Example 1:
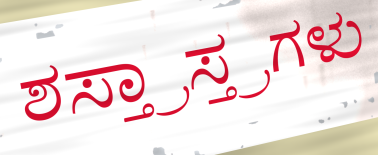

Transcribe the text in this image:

ಶಸ್ತ್ರಾಸ್ತ್ರಗಳು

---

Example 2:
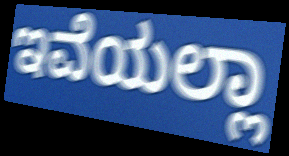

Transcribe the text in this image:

ಇವೆಯಲ್ಲಾ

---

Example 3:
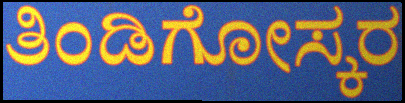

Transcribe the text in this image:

ತಿಂಡಿಗೋಸ್ಕರ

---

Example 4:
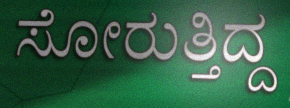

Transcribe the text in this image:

ಸೋರುತ್ತಿದ್ದ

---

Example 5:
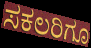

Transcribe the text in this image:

ಸಕಲರಿಗೂ